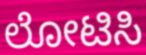
ಲೋಟಿಸಿ